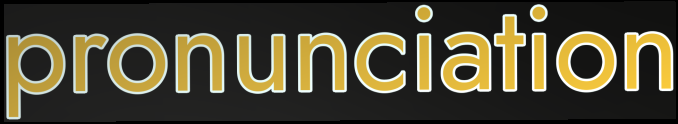
pronunciation